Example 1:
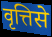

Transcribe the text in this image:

वृत्तिसे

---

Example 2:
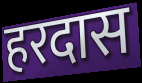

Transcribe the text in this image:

हरदास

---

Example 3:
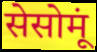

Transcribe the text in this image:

सेसोमूं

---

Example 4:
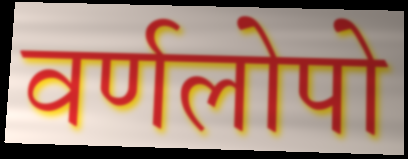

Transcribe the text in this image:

वर्णलोपो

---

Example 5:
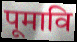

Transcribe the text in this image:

पूमावि